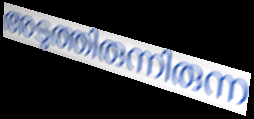
അടുത്തിരുന്നിരുന്ന